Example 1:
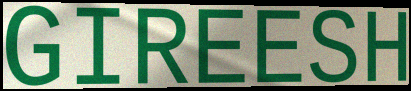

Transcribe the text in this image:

GIREESH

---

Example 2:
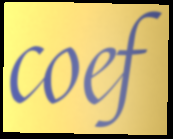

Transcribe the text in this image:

coef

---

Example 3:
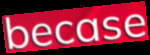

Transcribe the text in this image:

becase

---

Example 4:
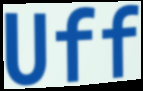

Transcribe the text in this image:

Uff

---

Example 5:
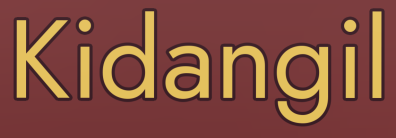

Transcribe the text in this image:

Kidangil